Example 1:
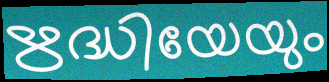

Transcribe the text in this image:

ഋദ്ധിയേയും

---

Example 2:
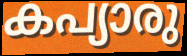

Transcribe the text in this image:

കപ്യാരു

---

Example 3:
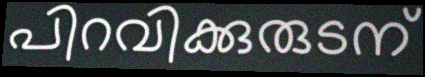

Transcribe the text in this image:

പിറവിക്കുരുടന്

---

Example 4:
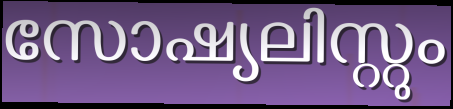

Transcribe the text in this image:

സോഷ്യലിസ്റ്റും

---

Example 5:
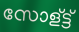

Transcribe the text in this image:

സോള്ട്ട്